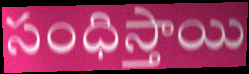
సంధిస్తాయి